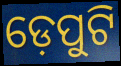
ଡ଼େପୁଟି